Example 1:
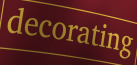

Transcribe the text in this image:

decorating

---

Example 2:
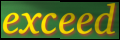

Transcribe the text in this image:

exceed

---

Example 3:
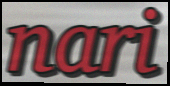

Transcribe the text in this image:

nari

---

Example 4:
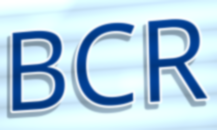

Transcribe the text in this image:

BCR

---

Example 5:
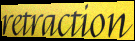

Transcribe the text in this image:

retraction